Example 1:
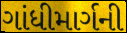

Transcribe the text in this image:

ગાંધીમાર્ગની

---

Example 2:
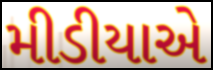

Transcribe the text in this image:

મીડીયાએ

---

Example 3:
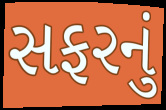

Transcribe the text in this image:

સફરનું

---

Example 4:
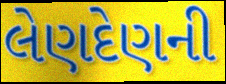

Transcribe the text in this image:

લેણદેણની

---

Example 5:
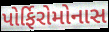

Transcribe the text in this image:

પોર્ફિરોમોનાસ